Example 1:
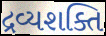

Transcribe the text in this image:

દ્રવ્યશક્તિ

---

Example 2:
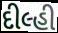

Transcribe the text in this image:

દીલ્હી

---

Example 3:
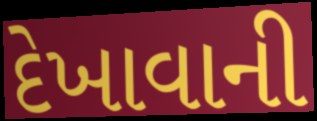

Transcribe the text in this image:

દેખાવાની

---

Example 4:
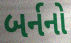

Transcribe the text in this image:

બર્નનો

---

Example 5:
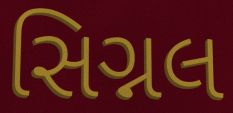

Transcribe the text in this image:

સિગ્નલ